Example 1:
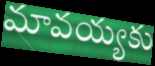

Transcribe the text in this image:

మావయ్యకు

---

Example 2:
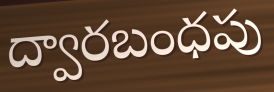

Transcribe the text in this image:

ద్వారబంధపు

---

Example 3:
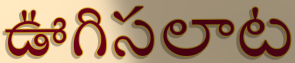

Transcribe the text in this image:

ఊగిసలాట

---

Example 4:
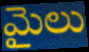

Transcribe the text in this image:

మైలు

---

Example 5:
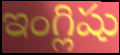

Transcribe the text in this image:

ఇంగ్లిషు